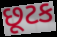
છૂટક